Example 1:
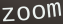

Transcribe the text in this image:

zoom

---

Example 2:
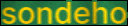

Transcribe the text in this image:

sondeho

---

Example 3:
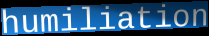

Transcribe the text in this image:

humiliation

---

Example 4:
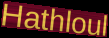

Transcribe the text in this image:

Hathloul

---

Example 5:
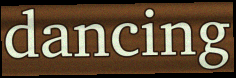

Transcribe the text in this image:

dancing